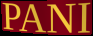
PANI